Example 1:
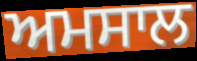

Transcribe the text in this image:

ਅਮਸਾਲ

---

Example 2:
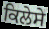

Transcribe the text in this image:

ਕਿਲੇਸੇ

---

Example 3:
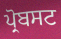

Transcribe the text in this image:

ਪ੍ਰੋਬਸਟ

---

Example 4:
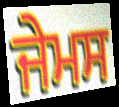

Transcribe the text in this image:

ਜੇਮਸ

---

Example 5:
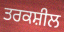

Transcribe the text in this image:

ਤਰਕਸ਼ੀਲ